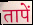
तापें